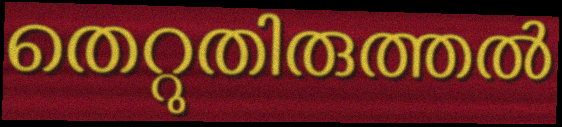
തെറ്റുതിരുത്തൽ